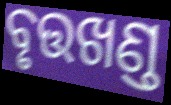
ବୃତ୍ତଖଣ୍ଡ